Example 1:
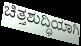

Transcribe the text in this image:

ಚಿತ್ತಶುದ್ಧಿಯಾಗಿ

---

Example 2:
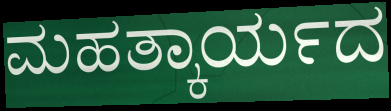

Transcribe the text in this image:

ಮಹತ್ಕಾರ್ಯದ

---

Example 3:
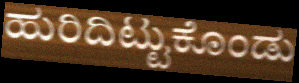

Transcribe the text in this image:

ಹುರಿದಿಟ್ಟುಕೊಂಡು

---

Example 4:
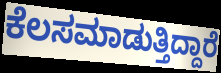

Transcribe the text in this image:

ಕೆಲಸಮಾಡುತ್ತಿದ್ದಾರೆ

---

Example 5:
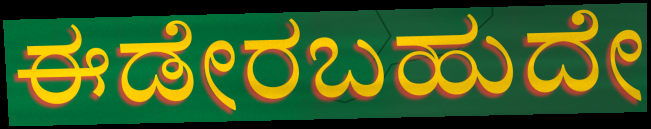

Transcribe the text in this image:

ಈಡೇರಬಹುದೇ